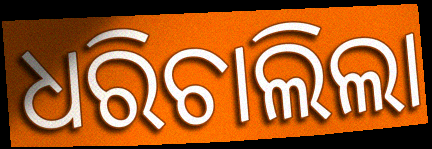
ଧରିଚାଲିଲା